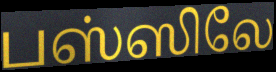
பஸ்ஸிலே